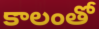
కాలంతో